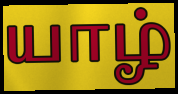
யாழ்